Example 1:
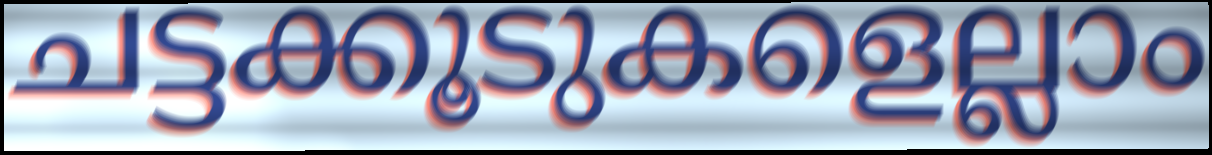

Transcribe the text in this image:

ചട്ടക്കൂടുകളെല്ലാം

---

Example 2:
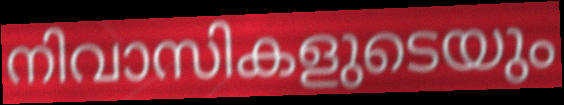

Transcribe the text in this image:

നിവാസികളുടെയും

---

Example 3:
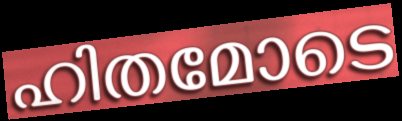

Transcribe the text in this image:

ഹിതമോടെ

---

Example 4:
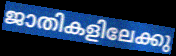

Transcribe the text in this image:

ജാതികളിലേക്കു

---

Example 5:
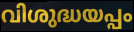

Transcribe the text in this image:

വിശുദ്ധയപ്പം